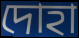
দোহা